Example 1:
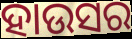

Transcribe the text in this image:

ହାଉସର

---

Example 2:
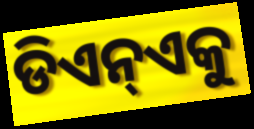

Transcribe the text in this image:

ଡିଏନ୍ଏକୁ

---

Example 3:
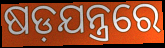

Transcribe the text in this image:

ଷଡ଼ଯନ୍ତ୍ରରେ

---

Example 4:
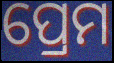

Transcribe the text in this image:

ପ୍ରେମ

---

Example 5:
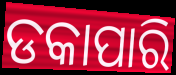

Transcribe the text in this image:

ଡକାପାରି